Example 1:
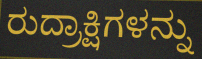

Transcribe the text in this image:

ರುದ್ರಾಕ್ಷಿಗಳನ್ನು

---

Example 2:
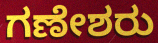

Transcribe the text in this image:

ಗಣೇಶರು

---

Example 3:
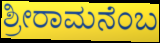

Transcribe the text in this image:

ಶ್ರೀರಾಮನೆಂಬ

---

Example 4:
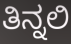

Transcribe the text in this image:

ತಿನ್ನಲಿ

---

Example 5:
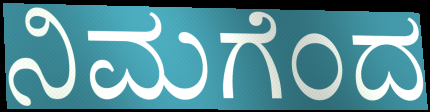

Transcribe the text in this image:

ನಿಮಗೆಂದ